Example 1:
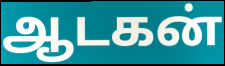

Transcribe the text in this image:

ஆடகன்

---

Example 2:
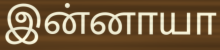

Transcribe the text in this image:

இன்னாயா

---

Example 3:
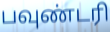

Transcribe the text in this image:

பவுண்டரி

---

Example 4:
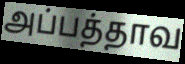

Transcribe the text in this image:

அப்பத்தாவ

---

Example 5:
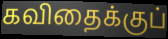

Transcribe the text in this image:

கவிதைக்குப்